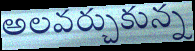
అలవర్చుకున్న